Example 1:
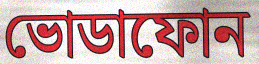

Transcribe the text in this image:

ভোডাফোন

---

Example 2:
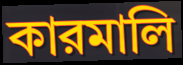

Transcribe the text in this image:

কারমালি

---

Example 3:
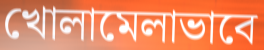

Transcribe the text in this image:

খোলামেলাভাবে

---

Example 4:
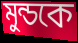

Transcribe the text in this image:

মুন্ডকে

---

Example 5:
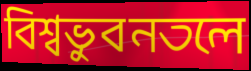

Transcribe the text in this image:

বিশ্বভুবনতলে